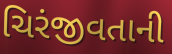
ચિરંજીવતાની